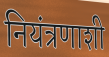
नियंत्रणाशी